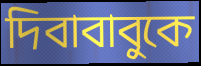
দিবাবাবুকে